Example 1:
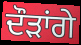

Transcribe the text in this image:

ਦੌੜਾਂਗੇ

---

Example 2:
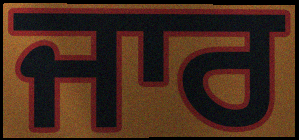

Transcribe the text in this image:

ਜਾਰ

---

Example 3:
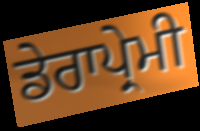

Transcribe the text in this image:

ਡੇਰਾਪ੍ਰੇਮੀ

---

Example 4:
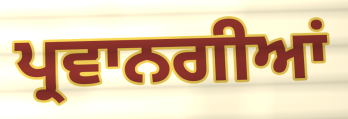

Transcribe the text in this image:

ਪ੍ਰਵਾਨਗੀਆਂ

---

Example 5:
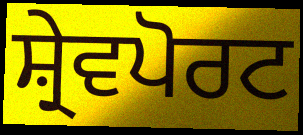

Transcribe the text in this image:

ਸ਼੍ਰੇਵਪੋਰਟ